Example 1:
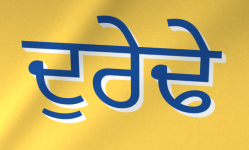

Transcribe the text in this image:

ਦੁਰੇਢੇ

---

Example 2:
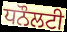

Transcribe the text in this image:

ਧਨੌਲਟੀ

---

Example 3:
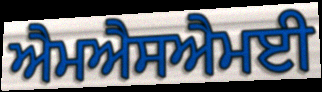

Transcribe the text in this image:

ਐਮਐਸਐਮਈ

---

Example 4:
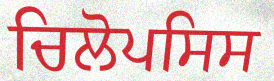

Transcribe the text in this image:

ਚਿਲੋਪਸਿਸ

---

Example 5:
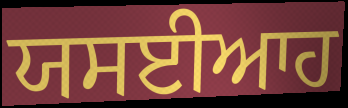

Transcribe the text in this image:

ਯਸਈਆਹ